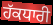
ਹੱਕਧਾਰੀ